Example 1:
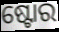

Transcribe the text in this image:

ଷ୍ଟୋର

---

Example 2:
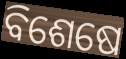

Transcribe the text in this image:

ବିଶେଷେ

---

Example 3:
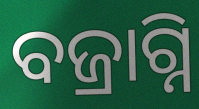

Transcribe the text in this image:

ବଜ୍ରାଗ୍ନି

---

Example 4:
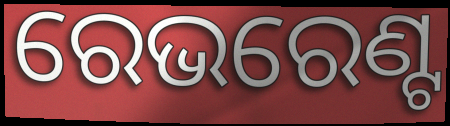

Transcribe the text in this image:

ରେଭରେଣ୍ଟ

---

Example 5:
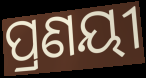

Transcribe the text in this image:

ପ୍ରଣୟୀ